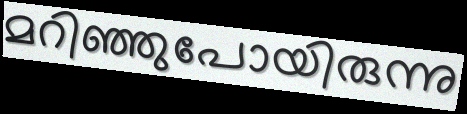
മറിഞ്ഞുപോയിരുന്നു